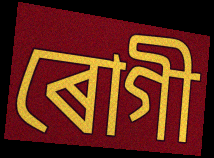
ৰোগী